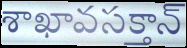
శాఖావసక్తాన్